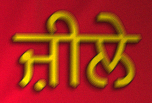
ਜ਼ੀਲੇ